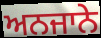
ਅਨਜਾਨੇ